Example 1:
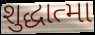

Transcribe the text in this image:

શુદ્ધાત્મા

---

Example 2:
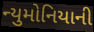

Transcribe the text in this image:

ન્યુમોનિયાની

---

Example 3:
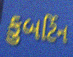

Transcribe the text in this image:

કુબર્ટિન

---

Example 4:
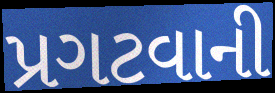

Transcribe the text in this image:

પ્રગટવાની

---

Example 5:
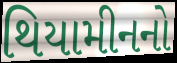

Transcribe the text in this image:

થિયામીનનો